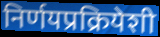
निर्णयप्रक्रियेशी